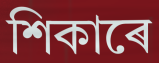
শিকাৰে